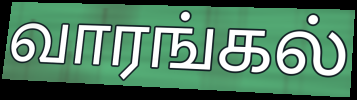
வாரங்கல்